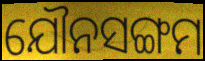
ଯୌନସଙ୍ଗମ